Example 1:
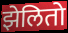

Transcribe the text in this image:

झेलितो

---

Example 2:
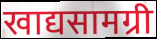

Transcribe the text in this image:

खाद्यसामग्री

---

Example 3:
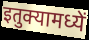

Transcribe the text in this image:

इतुक्यामध्यें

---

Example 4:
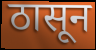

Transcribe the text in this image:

ठासून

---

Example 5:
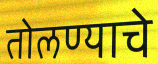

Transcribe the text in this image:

तोलण्याचे